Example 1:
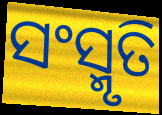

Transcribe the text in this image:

ସଂସ୍ମୃତି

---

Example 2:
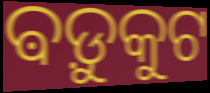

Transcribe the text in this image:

ଵଡ଼ୁକୁଟ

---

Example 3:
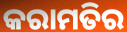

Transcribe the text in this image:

କରାମତିର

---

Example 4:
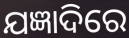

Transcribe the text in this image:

ଯଜ୍ଞାଦିରେ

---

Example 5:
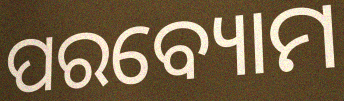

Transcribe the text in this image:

ପରବ୍ୟୋମ